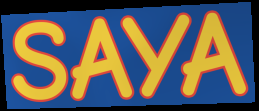
SAYA